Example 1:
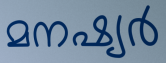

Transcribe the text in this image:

മനഷ്യർ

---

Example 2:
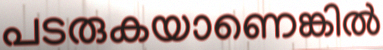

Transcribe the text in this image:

പടരുകയാണെങ്കിൽ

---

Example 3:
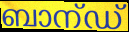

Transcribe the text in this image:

ബാന്ഡ്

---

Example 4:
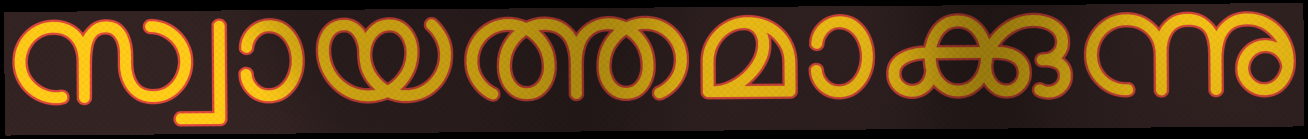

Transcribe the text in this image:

സ്വായത്തമാക്കുന്നു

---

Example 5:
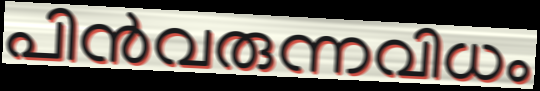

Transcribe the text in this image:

പിൻവരുന്നവിധം